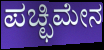
ಪಚ್ಛಿಮೇನ